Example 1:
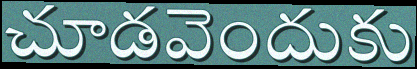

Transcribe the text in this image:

చూడవెందుకు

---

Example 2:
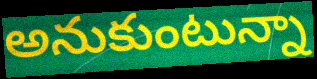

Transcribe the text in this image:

అనుకుంటున్నా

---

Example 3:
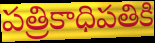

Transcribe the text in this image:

పత్రికాధిపతికి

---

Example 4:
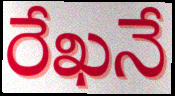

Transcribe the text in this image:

రేఖనే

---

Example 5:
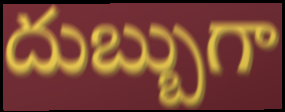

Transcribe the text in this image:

దుబ్బుగా